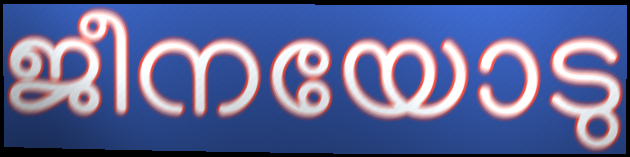
ജീനയോടു